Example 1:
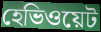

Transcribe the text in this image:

হেভিওয়েট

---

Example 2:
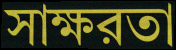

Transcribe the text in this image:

সাক্ষরতা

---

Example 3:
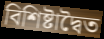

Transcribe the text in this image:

বিশিষ্টাদ্বৈত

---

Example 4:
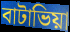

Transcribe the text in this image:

বাটাভিয়া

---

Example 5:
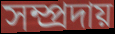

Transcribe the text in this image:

সম্প্রদায়